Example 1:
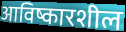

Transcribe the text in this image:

आविष्कारशील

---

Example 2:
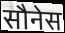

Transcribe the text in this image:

सौनेस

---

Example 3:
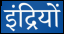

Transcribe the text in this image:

इंद्रियों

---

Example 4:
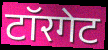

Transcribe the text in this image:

टॉरगेट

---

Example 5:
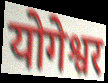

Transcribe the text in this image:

योगेश्वर